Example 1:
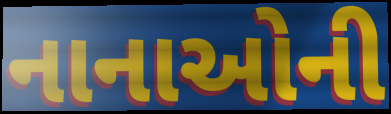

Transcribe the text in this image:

નાનાઓની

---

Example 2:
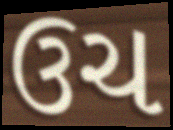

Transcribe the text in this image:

ઉચ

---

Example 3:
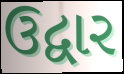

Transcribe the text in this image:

ઉદ્વાર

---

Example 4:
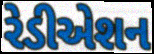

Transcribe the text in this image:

રેડીએશન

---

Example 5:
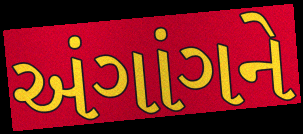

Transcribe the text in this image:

અંગાંગને